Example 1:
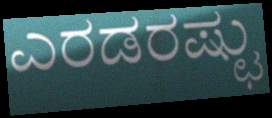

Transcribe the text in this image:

ಎರಡರಷ್ಟು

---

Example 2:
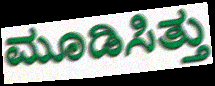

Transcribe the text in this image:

ಮೂಡಿಸಿತ್ತು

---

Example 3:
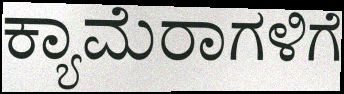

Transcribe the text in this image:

ಕ್ಯಾಮೆರಾಗಳಿಗೆ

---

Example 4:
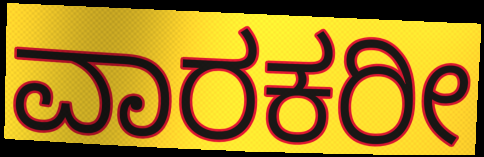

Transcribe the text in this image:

ವಾರಕರೀ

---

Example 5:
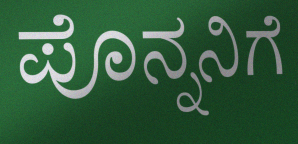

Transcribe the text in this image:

ಪೊನ್ನನಿಗೆ